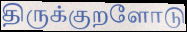
திருக்குறளோடு